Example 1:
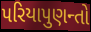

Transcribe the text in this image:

પરિયાપુણન્તો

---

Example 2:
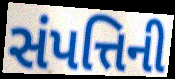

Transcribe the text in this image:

સંપત્તિની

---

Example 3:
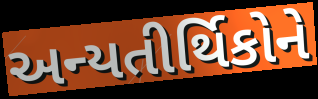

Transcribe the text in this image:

અન્યતીર્થિકોને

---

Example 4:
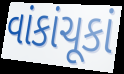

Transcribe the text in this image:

વાંકાંચૂકાં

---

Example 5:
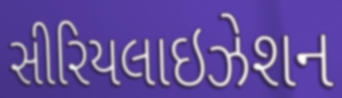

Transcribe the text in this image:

સીરિયલાઇઝેશન